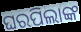
ଘରପିଲାଙ୍କ